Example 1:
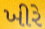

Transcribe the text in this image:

ખીરે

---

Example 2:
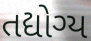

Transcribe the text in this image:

તદ્યોગ્ય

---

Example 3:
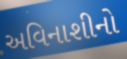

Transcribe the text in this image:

અવિનાશીનો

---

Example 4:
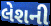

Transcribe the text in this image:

લેશની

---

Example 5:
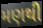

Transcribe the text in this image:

મણથી